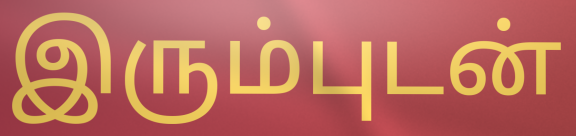
இரும்புடன்